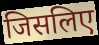
जिसलिए